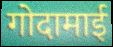
गोदामाई